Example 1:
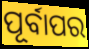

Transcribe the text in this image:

ପୂର୍ବାପର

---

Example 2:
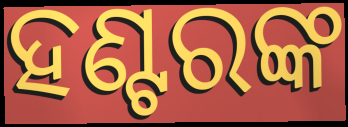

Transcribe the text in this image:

ହଣ୍ଟରଙ୍କ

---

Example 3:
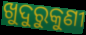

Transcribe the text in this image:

ଖୁଦୁରୁକୁଣୀ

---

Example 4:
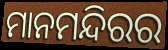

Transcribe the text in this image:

ମାନମନ୍ଦିରର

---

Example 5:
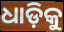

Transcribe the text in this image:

ଧାଡ଼ିକୁ